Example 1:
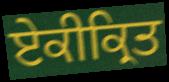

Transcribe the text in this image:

ਏਕੀਕ੍ਰਿਤ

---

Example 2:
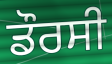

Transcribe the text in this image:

ਡੌਰਸੀ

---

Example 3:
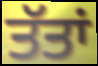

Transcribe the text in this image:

ਤੱਤਾਂ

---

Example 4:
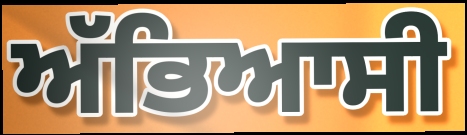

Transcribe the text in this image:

ਅੱਭਿਆਸੀ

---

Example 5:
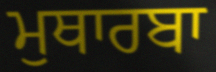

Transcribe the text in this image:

ਮੁਥਾਰਬਾ